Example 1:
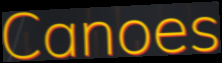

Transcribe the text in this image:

Canoes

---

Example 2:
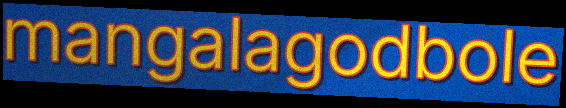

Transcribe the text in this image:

mangalagodbole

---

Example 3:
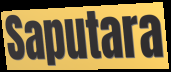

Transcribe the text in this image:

Saputara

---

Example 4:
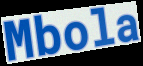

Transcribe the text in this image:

Mbola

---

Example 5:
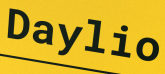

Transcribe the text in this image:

Daylio